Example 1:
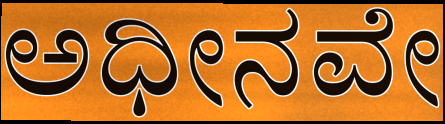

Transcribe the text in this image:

ಅಧೀನವೇ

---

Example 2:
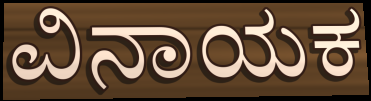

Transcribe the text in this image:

ವಿನಾಯಕ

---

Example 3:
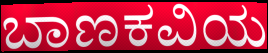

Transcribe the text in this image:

ಬಾಣಕವಿಯ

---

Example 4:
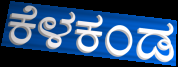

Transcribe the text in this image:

ಕೆಳಕಂಡ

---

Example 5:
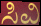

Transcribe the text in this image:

ಸಿವಿ